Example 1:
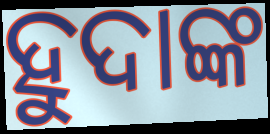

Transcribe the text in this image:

ହୁଦାଙ୍କ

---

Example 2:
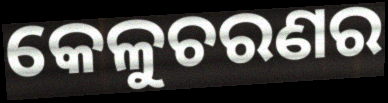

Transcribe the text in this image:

କେଳୁଚରଣର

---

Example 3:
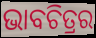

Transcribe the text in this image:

ଭାବଚିତ୍ରର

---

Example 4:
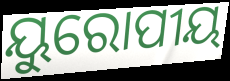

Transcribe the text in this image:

ୟୁରୋପୀୟ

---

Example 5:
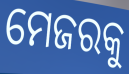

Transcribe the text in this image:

ମେଜରକୁ